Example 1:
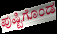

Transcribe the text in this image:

ಪುಷ್ಟಿಗೊಂಡ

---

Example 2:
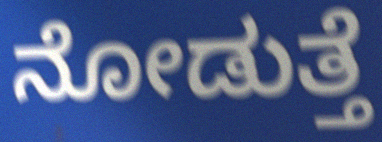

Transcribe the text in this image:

ನೋಡುತ್ತೆ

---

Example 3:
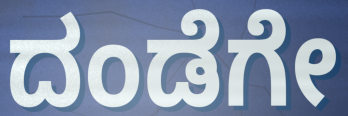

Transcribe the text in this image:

ದಂಡೆಗೇ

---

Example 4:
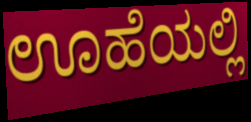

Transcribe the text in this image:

ಊಹೆಯಲ್ಲಿ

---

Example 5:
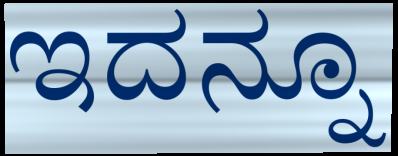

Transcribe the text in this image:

ಇದನ್ನೂ